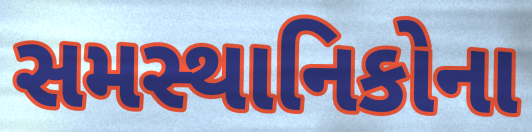
સમસ્થાનિકોના